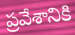
ప్రవేశానికి